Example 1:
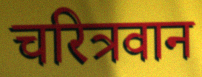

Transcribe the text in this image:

चरित्रवान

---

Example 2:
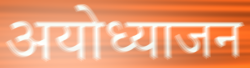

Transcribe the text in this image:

अयोध्याजन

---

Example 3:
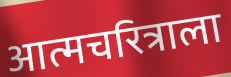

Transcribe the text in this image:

आत्मचरित्राला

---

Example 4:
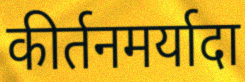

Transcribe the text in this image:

कीर्तनमर्यादा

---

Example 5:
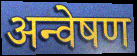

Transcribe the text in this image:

अन्वेषण